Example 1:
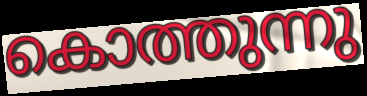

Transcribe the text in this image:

കൊത്തുന്നു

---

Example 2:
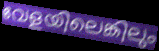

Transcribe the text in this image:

വേളയിലെങ്കിലും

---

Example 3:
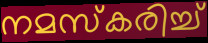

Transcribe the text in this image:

നമസ്കരിച്ച്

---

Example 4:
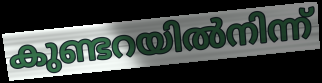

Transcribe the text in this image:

കുണ്ടറയിൽനിന്ന്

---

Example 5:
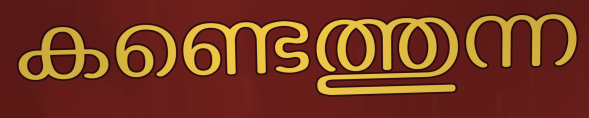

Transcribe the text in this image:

കണ്ടെത്തുന്ന